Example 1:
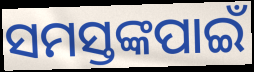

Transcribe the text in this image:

ସମସ୍ତଙ୍କପାଇଁ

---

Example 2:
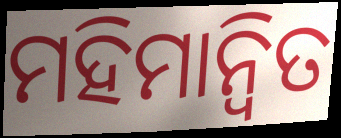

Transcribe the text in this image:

ମହିମାନ୍ୱିତ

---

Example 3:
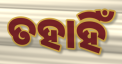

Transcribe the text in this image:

ତହାହିଁ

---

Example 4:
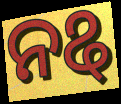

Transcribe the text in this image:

ନୡ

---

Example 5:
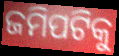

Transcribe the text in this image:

ଜମିପଟିକୁ